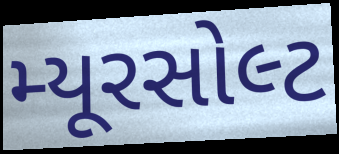
મ્યૂરસોલ્ટ